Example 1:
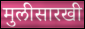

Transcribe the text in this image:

मुलीसारखी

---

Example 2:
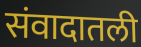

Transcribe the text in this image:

संवादातली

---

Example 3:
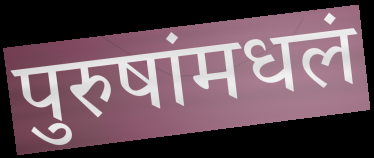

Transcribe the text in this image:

पुरुषांमधलं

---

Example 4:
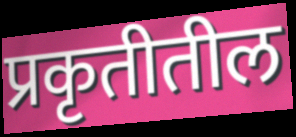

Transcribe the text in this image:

प्रकृतीतील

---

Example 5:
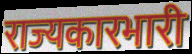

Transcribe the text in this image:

राज्यकारभारी